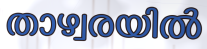
താഴ്വരയിൽ